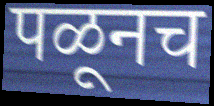
पळूनच